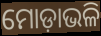
ମୋଡ଼ାଭଳି